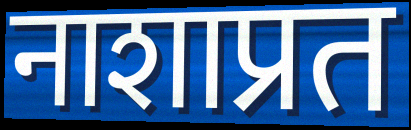
नाशाप्रत